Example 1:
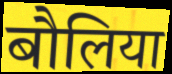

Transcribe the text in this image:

बौलिया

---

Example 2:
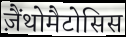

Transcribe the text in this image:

ज़ैंथोमैटोसिस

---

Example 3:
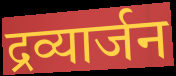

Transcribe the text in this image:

द्रव्यार्जन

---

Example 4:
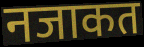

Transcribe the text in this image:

नजाकत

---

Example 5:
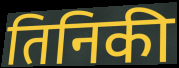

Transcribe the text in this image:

तिनिकी